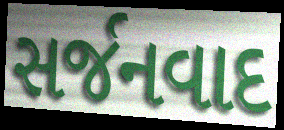
સર્જનવાદ